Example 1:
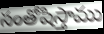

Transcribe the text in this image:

సంతోషిస్తాము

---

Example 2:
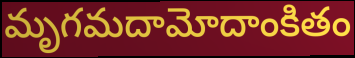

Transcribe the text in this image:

మృగమదామోదాంకితం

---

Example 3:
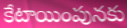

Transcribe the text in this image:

కేటాయింపునకు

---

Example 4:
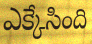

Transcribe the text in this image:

ఎక్కేసింది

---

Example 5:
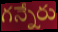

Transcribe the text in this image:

గన్నేరు